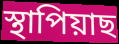
স্থাপিয়াছ